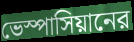
ভেস্পাসিয়ানের